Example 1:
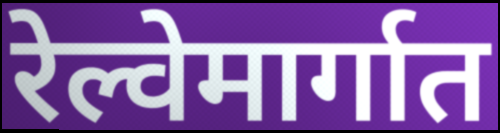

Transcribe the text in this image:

रेल्वेमार्गात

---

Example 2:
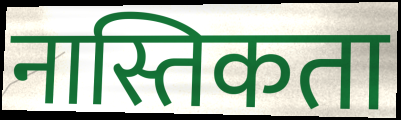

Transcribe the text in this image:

नास्तिकता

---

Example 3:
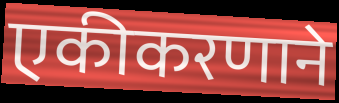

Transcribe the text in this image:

एकीकरणाने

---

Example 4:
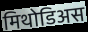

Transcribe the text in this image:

मिथोडिअस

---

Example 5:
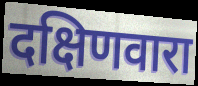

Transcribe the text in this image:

दक्षिणवारा